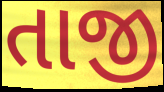
તાજી